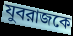
যুবরাজকে